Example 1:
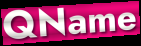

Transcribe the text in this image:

QName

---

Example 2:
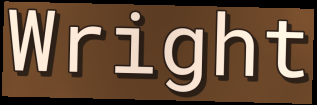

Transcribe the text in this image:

Wright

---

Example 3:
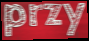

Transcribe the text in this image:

przy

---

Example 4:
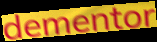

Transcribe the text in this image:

dementor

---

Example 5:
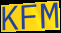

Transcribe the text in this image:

KFM